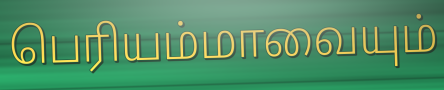
பெரியம்மாவையும்